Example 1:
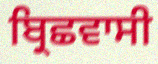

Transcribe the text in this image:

ਬ੍ਰਿਛਵਾਸੀ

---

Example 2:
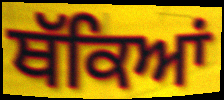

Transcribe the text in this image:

ਥੱਕਿਆਂ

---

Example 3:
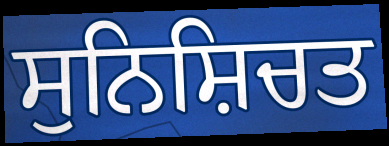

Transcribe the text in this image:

ਸੁਨਿਸ਼ਿਚਤ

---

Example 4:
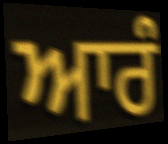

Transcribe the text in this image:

ਆਰੰ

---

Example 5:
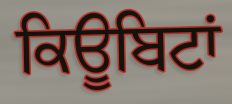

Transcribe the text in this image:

ਕਿਊਬਿਟਾਂ